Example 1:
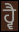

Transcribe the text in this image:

ਹ੍ਵੈ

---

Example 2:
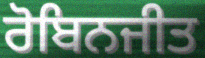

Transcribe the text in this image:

ਰੋਬਿਨਜੀਤ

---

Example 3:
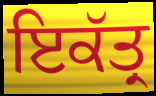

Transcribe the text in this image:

ਇਕੱਤ੍ਰ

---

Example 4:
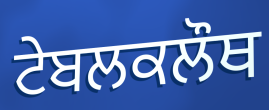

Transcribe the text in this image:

ਟੇਬਲਕਲੌਥ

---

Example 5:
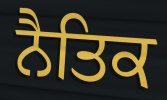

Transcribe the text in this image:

ਨੈਤਿਕ